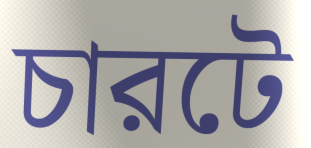
চারটে